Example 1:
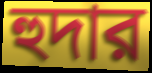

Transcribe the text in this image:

হুদার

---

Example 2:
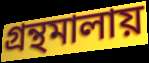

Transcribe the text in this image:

গ্রন্থমালায়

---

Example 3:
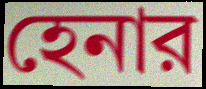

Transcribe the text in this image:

হেনার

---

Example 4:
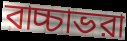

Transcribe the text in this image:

বাচ্চাভরা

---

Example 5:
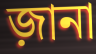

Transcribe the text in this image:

জ়ানা